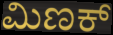
ಮಿಣಕ್